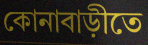
কোনাবাড়ীতে